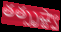
తత్సృష్ట్వా